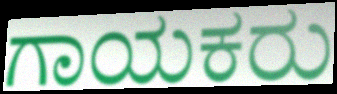
ಗಾಯಕರು